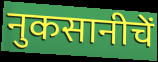
नुकसानीचें